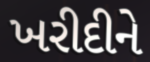
ખરીદીને